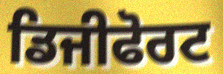
ਡਿਜੀਫੋਰਟ